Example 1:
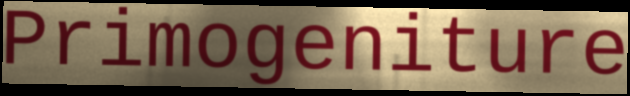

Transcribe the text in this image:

Primogeniture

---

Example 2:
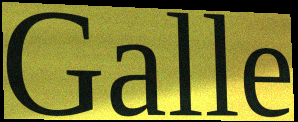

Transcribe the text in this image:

Galle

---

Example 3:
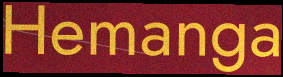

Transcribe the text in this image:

Hemanga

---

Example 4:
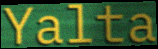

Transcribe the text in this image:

Yalta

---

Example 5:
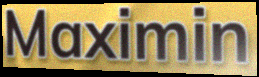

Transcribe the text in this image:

Maximin